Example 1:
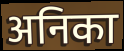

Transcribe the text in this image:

अनिका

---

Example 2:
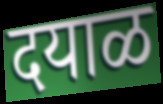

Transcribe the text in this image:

दयाळ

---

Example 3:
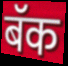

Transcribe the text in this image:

बॅक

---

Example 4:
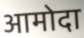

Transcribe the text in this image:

आमोदा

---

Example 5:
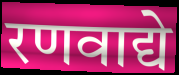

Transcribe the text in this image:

रणवाद्ये